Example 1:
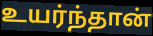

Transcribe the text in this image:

உயர்ந்தான்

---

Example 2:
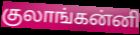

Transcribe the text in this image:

குலாங்கன்னி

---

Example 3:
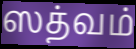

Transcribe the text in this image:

ஸத்வம்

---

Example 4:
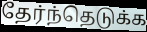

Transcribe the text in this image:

தேர்ந்தெடுக்க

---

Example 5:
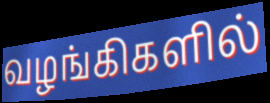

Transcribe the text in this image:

வழங்கிகளில்